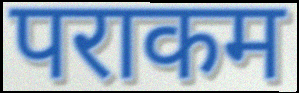
पराकम